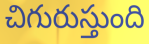
చిగురుస్తుంది